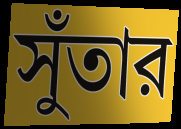
সুঁতার